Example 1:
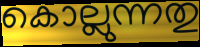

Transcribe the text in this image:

കൊല്ലുന്നതു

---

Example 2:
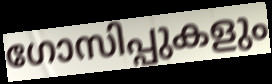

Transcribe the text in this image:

ഗോസിപ്പുകളും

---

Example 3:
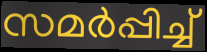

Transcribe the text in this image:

സമർപ്പിച്ച്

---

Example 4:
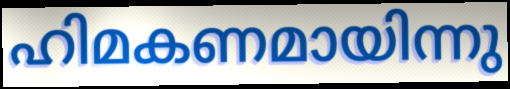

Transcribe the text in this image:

ഹിമകണമായിന്നു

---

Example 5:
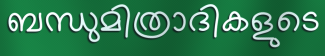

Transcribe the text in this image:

ബന്ധുമിത്രാദികളുടെ